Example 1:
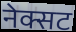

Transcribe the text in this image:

नेक्सट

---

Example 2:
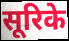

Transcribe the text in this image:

सूरिके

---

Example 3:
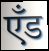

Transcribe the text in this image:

एँड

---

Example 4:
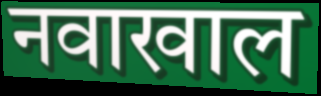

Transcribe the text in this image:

नवाखाल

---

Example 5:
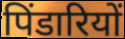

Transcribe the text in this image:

पिंडारियों